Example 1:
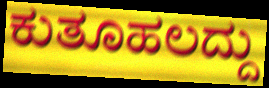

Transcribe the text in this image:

ಕುತೂಹಲದ್ದು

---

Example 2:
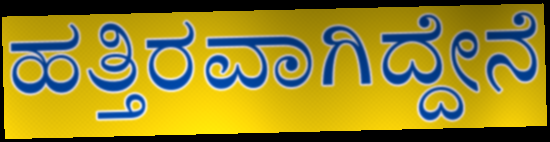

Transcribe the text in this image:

ಹತ್ತಿರವಾಗಿದ್ದೇನೆ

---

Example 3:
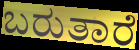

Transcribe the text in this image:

ಬರುತಾರೆ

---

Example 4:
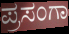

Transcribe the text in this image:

ಪ್ರಸಂಗಾ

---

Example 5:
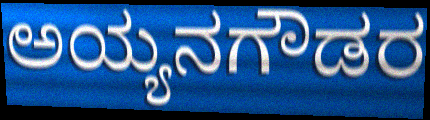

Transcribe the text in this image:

ಅಯ್ಯನಗೌಡರ